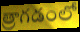
త్రాగడంలో